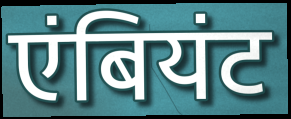
एंबियंट